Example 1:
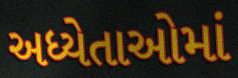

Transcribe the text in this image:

અધ્યેતાઓમાં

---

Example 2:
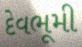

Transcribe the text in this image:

દેવભૂમી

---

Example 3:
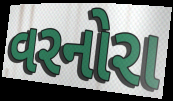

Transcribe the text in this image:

વરનોરા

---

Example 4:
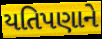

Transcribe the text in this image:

યતિપણાને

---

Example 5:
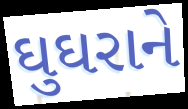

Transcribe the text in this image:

ઘુઘરાને